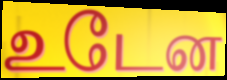
உடேன